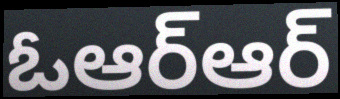
ఓఆర్ఆర్